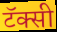
टॅक्सी